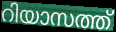
റിയാസത്ത്